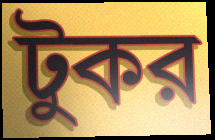
টুকর